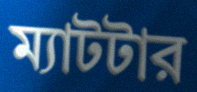
ম্যাটটার